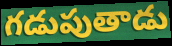
గడుపుతాడు